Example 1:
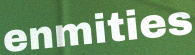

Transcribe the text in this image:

enmities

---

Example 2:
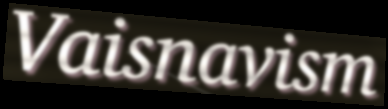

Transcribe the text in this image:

Vaisnavism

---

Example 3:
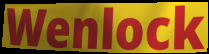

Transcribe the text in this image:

Wenlock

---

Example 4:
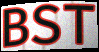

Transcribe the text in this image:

BST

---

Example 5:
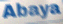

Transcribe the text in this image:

Abaya